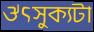
ঔৎসুক্যটা